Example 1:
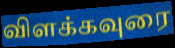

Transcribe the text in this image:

விளக்கவுரை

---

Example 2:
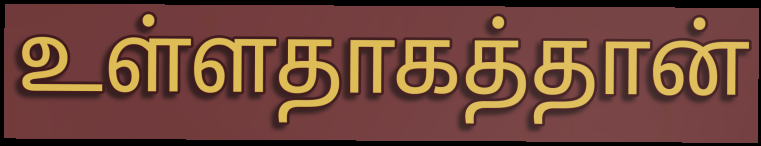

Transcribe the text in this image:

உள்ளதாகத்தான்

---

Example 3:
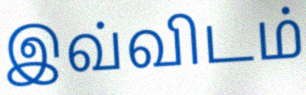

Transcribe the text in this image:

இவ்விடம்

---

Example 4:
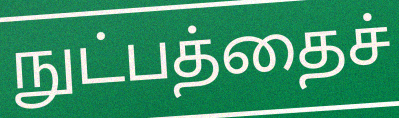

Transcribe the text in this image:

நுட்பத்தைச்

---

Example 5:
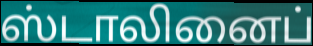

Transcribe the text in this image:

ஸ்டாலினைப்